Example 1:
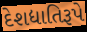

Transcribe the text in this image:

દેશદ્યાતિરૂપે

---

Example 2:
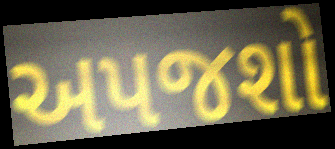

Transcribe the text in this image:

અપજશો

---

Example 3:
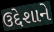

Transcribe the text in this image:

ઉદ્દેશાને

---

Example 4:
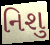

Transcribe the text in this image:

નિશુ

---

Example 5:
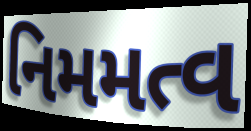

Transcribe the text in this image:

નિમમત્વ